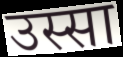
उस्सा